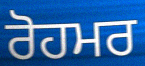
ਰੋਹਮਰ